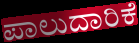
ಪಾಲುದಾರಿಕೆ